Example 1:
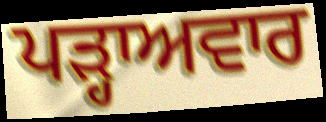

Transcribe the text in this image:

ਪੜ੍ਹਾਅਵਾਰ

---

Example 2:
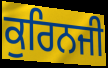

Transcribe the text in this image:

ਕੁਰਿਨਜੀ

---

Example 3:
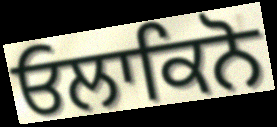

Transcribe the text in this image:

ਓਲਾਕਿਨੋ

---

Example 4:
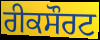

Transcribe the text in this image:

ਰੀਕਸੌਰਟ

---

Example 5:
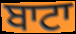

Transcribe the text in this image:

ਬਾਟਾ